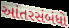
આંતરસંબંધો